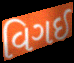
વિગઈ